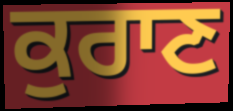
ਕੁਰਾਣ